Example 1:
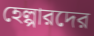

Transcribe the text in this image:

হেল্পারদের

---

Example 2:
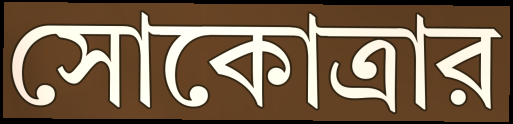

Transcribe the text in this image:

সোকোত্রার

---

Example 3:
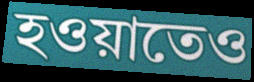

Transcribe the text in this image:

হওয়াতেও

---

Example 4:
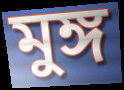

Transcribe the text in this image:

মুঙ্গ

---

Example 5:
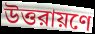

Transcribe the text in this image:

উত্তরায়ণে